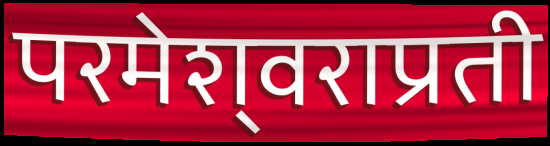
परमेश्वराप्रती